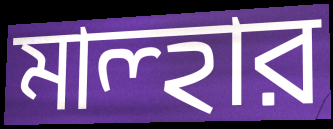
মাল্হার